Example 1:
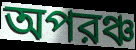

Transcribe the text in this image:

অপরঞ্চ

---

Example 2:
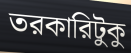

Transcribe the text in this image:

তরকারিটুকু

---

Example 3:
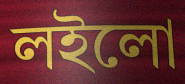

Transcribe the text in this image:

লইলো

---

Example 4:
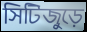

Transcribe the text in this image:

সিটিজুড়ে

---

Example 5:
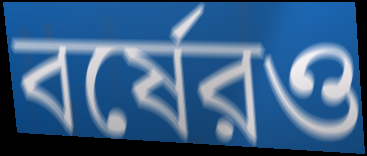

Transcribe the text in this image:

বর্ষেরও